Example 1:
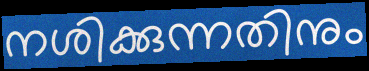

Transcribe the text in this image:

നശിക്കുന്നതിനും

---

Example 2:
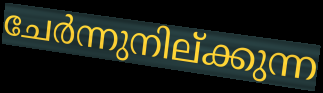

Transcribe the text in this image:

ചേർന്നുനില്ക്കുന്ന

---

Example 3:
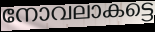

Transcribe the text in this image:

നോവലാകട്ടെ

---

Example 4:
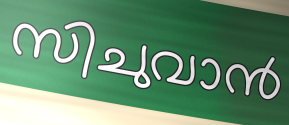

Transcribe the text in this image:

സിചുവാൻ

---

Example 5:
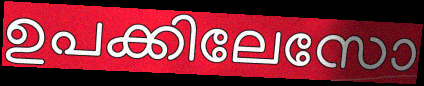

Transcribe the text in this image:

ഉപക്കിലേസോ